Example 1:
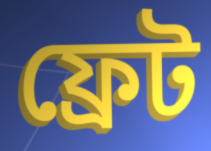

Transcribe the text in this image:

ফ্রেট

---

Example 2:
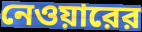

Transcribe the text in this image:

নেওয়ারের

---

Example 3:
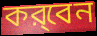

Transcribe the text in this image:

কর্‌বেন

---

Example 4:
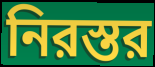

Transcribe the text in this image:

নিরস্তর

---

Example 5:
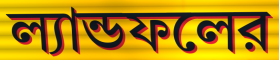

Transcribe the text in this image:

ল্যান্ডফলের